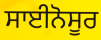
ਸਾਈਨੋਸੂਰ